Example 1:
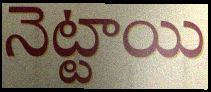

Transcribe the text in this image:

నెట్టాయి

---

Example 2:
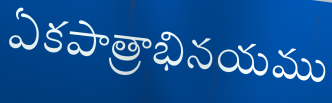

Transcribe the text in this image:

ఏకపాత్రాభినయము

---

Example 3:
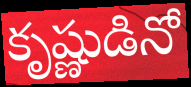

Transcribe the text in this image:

కృష్ణుడినో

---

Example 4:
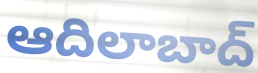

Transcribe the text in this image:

ఆదిలాబాద్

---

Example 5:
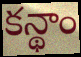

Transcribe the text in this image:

కన్థాం